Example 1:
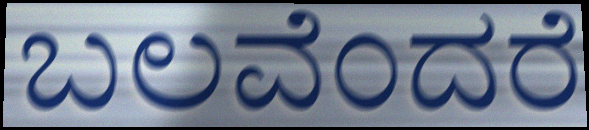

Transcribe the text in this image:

ಬಲವೆಂದರೆ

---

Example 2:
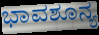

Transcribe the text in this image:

ಭಾವಶೂನ್ಯ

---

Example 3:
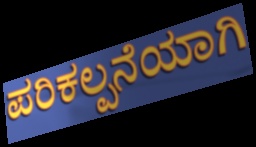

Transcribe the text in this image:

ಪರಿಕಲ್ಪನೆಯಾಗಿ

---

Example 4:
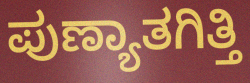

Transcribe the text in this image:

ಪುಣ್ಯಾತಗಿತ್ತಿ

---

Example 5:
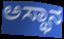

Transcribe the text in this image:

ಅಸ್ಥಾನ